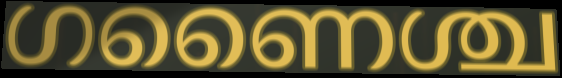
ഗണൈശ്ച